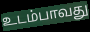
உடம்பாவது